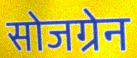
सोजग्रेन